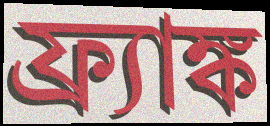
ফ্র্যাঙ্ক